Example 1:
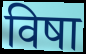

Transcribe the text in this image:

विषा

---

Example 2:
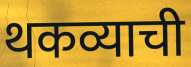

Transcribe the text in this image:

थकव्याची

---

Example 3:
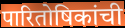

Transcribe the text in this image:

पारितोषिकांची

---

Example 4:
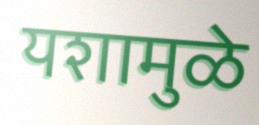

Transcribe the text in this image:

यशामुळे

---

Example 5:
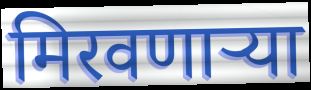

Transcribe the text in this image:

मिरवणाऱ्या